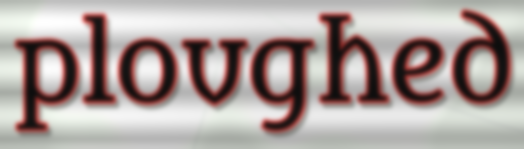
ploughed